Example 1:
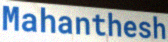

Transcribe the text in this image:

Mahanthesh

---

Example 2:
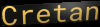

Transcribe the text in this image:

Cretan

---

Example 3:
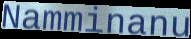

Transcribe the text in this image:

Namminanu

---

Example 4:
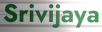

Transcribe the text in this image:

Srivijaya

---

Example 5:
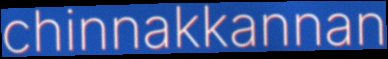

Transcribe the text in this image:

chinnakkannan